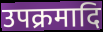
उपक्रमादि